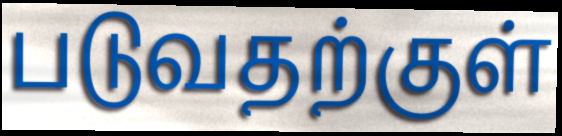
படுவதற்குள்